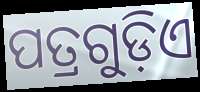
ପତ୍ରଗୁଡ଼ିଏ